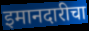
इमानदारीचा